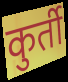
कुर्ती